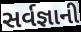
સર્વજ્ઞાની